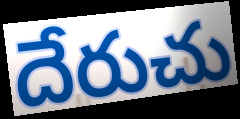
దేరుచు